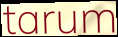
tarum